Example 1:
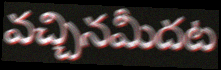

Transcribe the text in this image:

వచ్చినమీదట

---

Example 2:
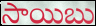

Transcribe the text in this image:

సాయిబు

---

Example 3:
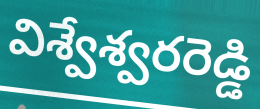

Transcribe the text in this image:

విశ్వేశ్వరరెడ్డి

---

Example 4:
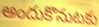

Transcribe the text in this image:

అందుకొనుటకు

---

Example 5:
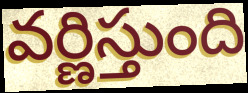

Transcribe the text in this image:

వర్ణిస్తుంది